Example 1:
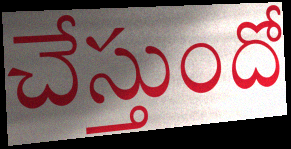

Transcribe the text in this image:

చేస్తుందో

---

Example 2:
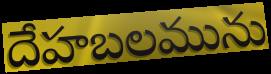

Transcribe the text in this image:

దేహబలమును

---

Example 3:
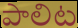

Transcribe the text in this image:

పాలిట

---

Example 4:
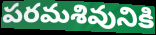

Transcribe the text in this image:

పరమశివునికి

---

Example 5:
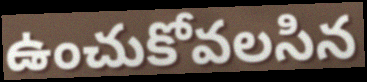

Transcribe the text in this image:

ఉంచుకోవలసిన